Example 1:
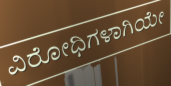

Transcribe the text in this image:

ವಿರೋಧಿಗಳಾಗಿಯೇ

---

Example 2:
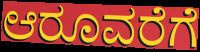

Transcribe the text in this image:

ಆರೂವರೆಗೆ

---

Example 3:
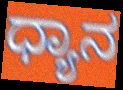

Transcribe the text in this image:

ಧ್ಯಾನ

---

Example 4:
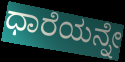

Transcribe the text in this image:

ಧಾರೆಯನ್ನೇ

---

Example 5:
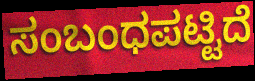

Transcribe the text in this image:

ಸಂಬಂಧಪಟ್ಟಿದೆ